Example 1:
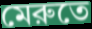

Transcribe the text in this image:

মেরুতে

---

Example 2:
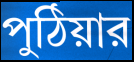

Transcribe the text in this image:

পুঠিয়ার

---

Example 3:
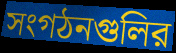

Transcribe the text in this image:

সংগঠনগুলির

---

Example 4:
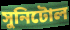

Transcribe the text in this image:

সুনিটোল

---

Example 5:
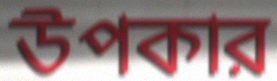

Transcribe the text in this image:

উপকার